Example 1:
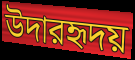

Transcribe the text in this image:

উদারহৃদয়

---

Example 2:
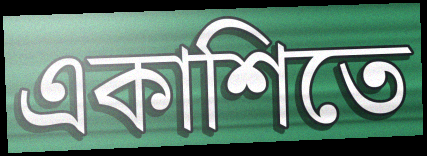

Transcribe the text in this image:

একাশিতে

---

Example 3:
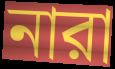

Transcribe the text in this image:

নারা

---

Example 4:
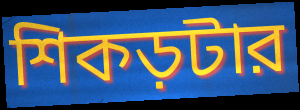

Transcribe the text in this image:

শিকড়টার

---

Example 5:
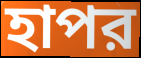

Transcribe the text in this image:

হাপর